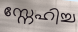
സ്നേഹിച്ച